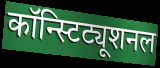
कॉन्स्टिट्यूशनल